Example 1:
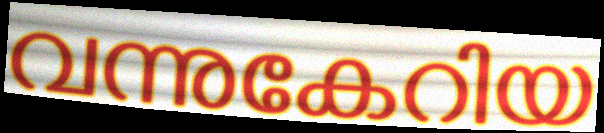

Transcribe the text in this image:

വന്നുകേറിയ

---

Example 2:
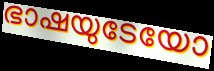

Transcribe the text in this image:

ഭാഷയുടേയോ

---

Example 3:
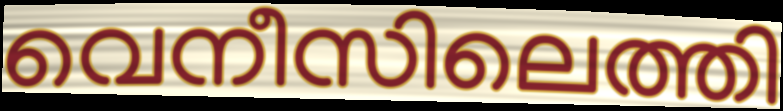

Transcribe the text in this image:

വെനീസിലെത്തി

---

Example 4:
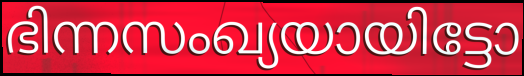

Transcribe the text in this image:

ഭിന്നസംഖ്യയായിട്ടോ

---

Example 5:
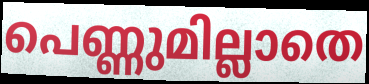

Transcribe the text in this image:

പെണ്ണുമില്ലാതെ